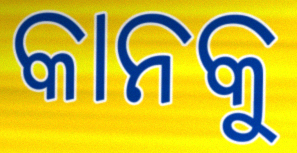
କାନକୁ